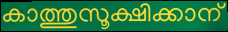
കാത്തുസൂക്ഷിക്കാന്